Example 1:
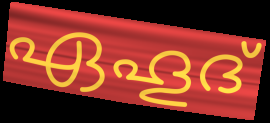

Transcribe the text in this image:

ഏഹൂദ്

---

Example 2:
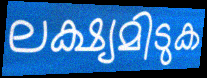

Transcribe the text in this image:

ലക്ഷ്യമിടുക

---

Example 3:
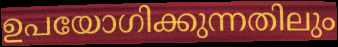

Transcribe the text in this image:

ഉപയോഗിക്കുന്നതിലും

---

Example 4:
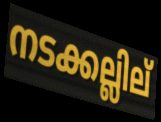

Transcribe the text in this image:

നടക്കല്ലില്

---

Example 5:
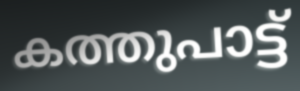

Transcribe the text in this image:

കത്തുപാട്ട്